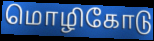
மொழிகோடு